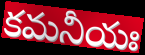
కమనీయః